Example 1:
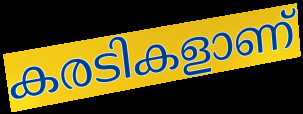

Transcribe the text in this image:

കരടികളാണ്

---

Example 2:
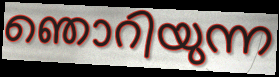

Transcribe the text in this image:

ഞൊറിയുന്ന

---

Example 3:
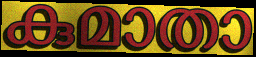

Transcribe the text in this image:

കുമാതാ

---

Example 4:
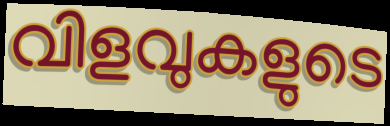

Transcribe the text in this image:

വിളവുകളുടെ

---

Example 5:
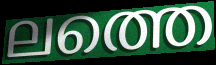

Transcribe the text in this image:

ലത്തെ